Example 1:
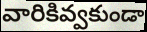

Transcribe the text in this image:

వారికివ్వకుండా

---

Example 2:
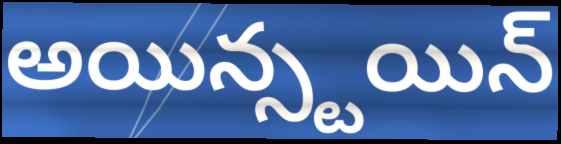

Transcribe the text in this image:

అయిన్స్టయిన్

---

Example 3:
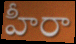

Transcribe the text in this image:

హీరా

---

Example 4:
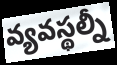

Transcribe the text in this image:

వ్యవస్థల్నీ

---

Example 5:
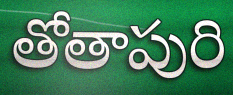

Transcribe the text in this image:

తోతాపురి